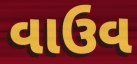
વાઉવ